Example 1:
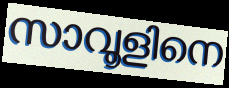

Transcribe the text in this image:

സാവൂളിനെ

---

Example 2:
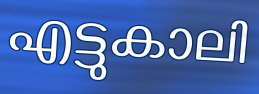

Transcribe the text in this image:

എട്ടുകാലി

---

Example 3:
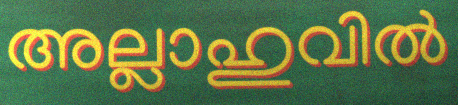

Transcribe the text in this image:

അല്ലാഹുവിൽ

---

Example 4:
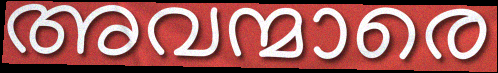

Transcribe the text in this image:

അവന്മാരെ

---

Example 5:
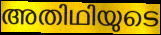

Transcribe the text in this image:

അതിഥിയുടെ